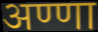
अण्णा